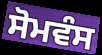
ਸੋਮਵੰਸ